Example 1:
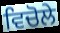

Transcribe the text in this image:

ਵਿਚੋਲੇ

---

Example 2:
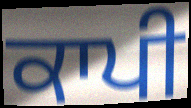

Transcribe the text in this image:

ਕਾਪੀ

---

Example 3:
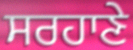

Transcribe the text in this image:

ਸਰਹਾਣੇ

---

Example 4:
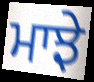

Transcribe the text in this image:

ਮਾਝੇ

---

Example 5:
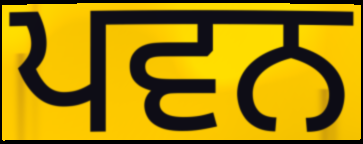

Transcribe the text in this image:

ਪਵਨ